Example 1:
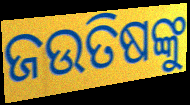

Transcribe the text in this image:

ଜଉତିଷଙ୍କୁ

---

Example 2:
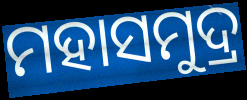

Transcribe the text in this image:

ମହାସମୁଦ୍ର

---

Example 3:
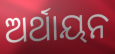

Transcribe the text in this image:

ଅର୍ଥାୟନ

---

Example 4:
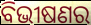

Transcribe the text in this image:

ବିଭୀଷଣର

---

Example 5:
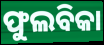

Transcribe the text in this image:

ଫୁଲବିକା